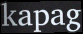
kapag